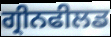
ਗ੍ਰੀਨਫੀਲਡ